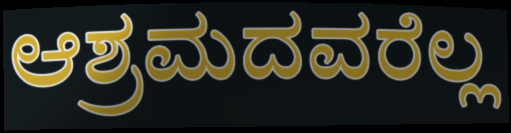
ಆಶ್ರಮದವರೆಲ್ಲ